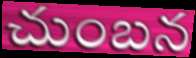
చుంబన